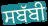
ਸਬੱਬੀ